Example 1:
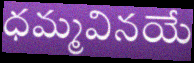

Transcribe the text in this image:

ధమ్మవినయే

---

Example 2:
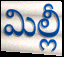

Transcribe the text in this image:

మిల్లీ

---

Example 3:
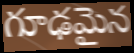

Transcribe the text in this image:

గూఢమైన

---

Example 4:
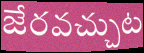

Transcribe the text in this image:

జేరవచ్చుట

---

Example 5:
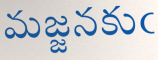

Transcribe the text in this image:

మజ్జనకుఁ